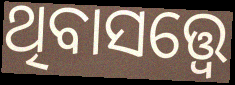
ଥିବାସତ୍ତ୍ଵେ